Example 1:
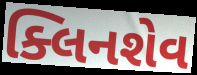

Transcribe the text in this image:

ક્લિનશેવ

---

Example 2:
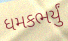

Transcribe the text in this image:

ધમકભર્યું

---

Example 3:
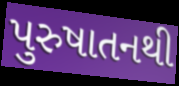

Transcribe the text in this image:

પુરુષાતનથી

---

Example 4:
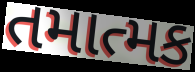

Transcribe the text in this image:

તમાત્મક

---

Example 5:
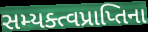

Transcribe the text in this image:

સમ્યક્ત્વપ્રાપ્તિના